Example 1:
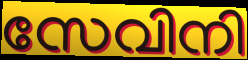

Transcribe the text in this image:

സേവിനി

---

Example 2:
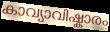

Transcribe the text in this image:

കാവ്യാവിഷ്കാരം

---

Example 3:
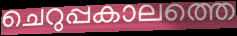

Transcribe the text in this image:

ചെറുപ്പകാലത്തെ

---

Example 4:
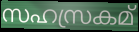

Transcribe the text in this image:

സഹസ്രകമ്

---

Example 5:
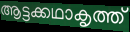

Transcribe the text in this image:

ആട്ടക്കഥാകൃത്ത്